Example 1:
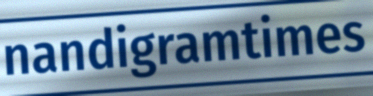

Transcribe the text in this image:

nandigramtimes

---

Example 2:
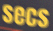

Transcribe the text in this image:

secs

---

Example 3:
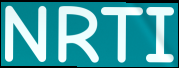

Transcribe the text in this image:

NRTI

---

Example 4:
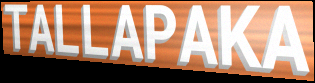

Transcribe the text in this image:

TALLAPAKA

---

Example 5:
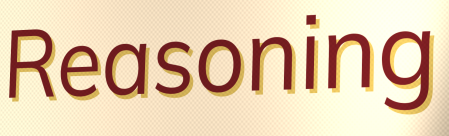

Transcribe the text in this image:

Reasoning